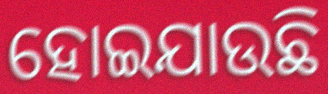
ହୋଇଯାଉଛି